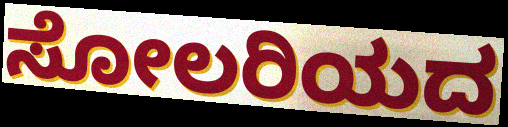
ಸೋಲರಿಯದ